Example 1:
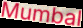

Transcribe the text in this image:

Mumbal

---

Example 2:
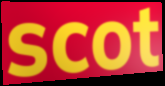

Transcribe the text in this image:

scot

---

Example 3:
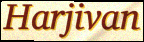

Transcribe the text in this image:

Harjivan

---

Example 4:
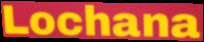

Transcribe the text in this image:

Lochana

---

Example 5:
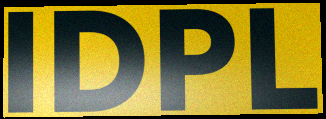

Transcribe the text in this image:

IDPL